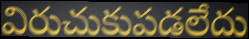
విరుచుకుపడలేదు